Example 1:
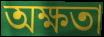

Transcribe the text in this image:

অক্ষতা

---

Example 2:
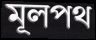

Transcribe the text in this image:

মূলপথ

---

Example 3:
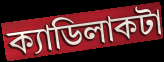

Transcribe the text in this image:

ক্যাডিলাকটা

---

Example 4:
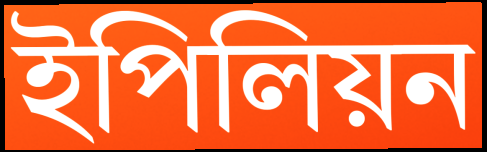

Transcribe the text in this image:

ইপিলিয়ন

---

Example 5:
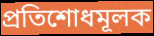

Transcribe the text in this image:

প্রতিশোধমূলক